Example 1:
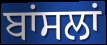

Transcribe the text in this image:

ਬਾਂਸਲਾਂ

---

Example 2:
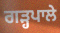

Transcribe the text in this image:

ਗੜ੍ਹਪਾਲੇ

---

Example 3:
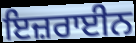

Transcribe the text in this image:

ਇਜ਼ਰਾਈਨ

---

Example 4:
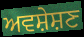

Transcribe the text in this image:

ਅਵਸ਼ੇਸ਼ਣ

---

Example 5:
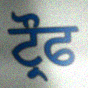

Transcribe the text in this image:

ਟ੍ਰੌਫ